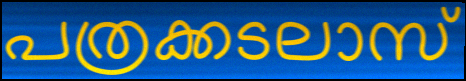
പത്രക്കടലാസ്